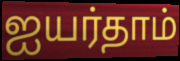
ஐயர்தாம்